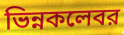
ভিন্নকলেবর